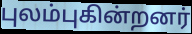
புலம்புகின்றனர்